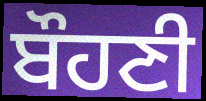
ਬੌਹਣੀ